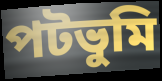
পটভুমি